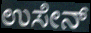
ಉಸೇನ್